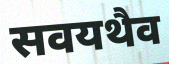
सवयथैव